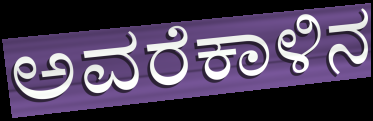
ಅವರೆಕಾಳಿನ